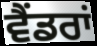
ਵੈਂਡਰਾਂ